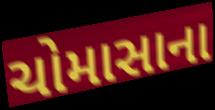
ચોમાસાના